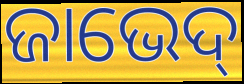
ଜାଭେଦ୍